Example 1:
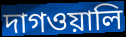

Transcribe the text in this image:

দাগওয়ালি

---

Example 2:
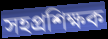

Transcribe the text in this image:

সহপ্রশিক্ষক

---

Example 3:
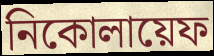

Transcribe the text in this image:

নিকোলায়েফ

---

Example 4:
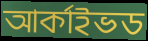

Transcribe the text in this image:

আর্কাইভড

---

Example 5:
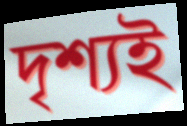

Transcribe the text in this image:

দৃশ্যই